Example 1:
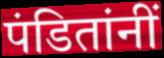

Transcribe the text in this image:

पंडितांनीं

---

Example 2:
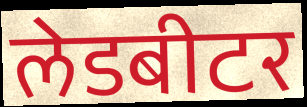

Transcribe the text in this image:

लेडबीटर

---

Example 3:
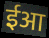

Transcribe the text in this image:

ईआ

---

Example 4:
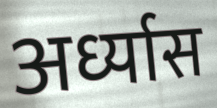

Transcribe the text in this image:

अर्ध्यास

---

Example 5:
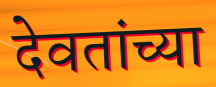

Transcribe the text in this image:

देवतांच्या